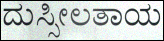
ದುಸ್ಸೀಲತಾಯ